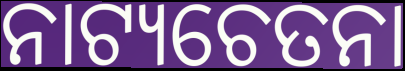
ନାଟ୍ୟଚେତନା